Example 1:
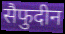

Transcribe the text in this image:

सैफुदीन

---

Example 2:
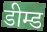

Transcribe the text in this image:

डीम्ड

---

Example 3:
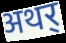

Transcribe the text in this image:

अथर्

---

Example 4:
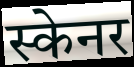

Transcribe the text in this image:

स्‍केनर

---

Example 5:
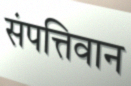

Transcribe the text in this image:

संपत्तिवान